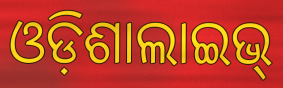
ଓଡ଼ିଶାଲାଇଭ୍